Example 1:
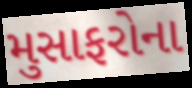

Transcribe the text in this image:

મુસાફરોના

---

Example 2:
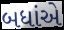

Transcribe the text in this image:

બધાંએ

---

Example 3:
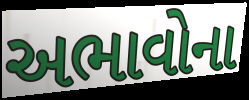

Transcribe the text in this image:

અભાવોના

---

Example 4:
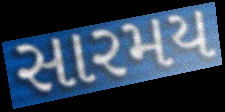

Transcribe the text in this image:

સારમય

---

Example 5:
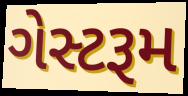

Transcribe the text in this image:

ગેસ્ટરૂમ